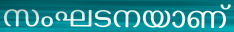
സംഘടനയാണ്